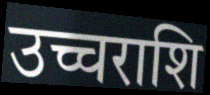
उच्चराशि